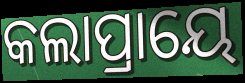
କଲାପ୍ରାୟେ